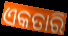
ଏକତାରି